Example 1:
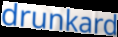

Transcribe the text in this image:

drunkard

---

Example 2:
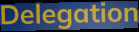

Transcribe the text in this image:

Delegation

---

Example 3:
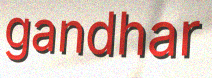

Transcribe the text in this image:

gandhar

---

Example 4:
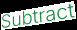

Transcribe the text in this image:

Subtract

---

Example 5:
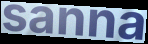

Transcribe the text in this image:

sanna